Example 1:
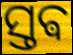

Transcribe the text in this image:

ସ୍ତଵ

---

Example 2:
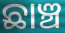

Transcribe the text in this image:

ଛାଞ୍ଚ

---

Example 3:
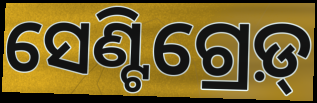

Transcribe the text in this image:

ସେଣ୍ଟିଗ୍ରେଡ଼୍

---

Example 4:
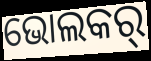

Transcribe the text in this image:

ଭୋଲକର୍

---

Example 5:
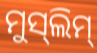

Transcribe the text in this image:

ମୁସ୍‌ଲିମ୍